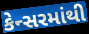
કેન્સરમાંથી